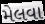
મેલવા